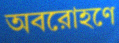
অবরোহণে